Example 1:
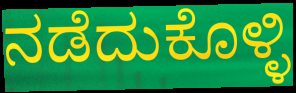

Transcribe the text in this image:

ನಡೆದುಕೊಳ್ಳಿ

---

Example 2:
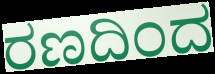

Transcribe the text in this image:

ರಣದಿಂದ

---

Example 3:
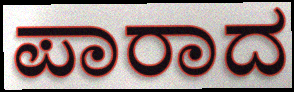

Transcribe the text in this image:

ಪಾರಾದ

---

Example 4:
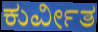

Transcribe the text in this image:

ಕುರ್ವೀತ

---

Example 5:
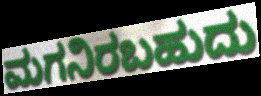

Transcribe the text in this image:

ಮಗನಿರಬಹುದು